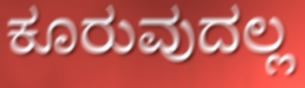
ಕೂರುವುದಲ್ಲ